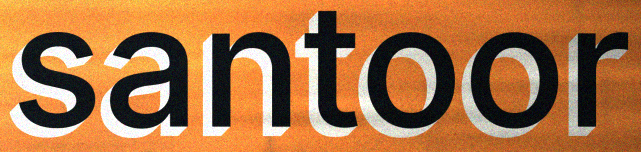
santoor